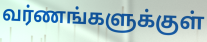
வர்ணங்களுக்குள்